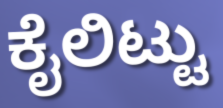
ಕೈಲಿಟ್ಟು